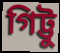
গিট্টু